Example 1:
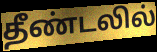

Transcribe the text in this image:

தீண்டலில்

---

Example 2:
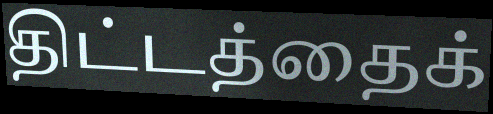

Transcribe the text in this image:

திட்டத்தைக்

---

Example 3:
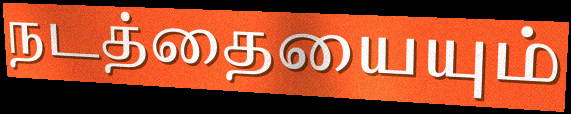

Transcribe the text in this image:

நடத்தையையும்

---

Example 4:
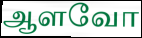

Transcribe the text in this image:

ஆளவோ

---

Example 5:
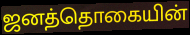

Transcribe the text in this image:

ஜனத்தொகையின்